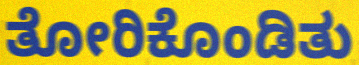
ತೋರಿಕೊಂಡಿತು